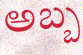
అబ్బ